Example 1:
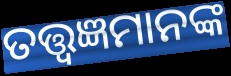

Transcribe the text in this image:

ତତ୍ତ୍ୱଜ୍ଞମାନଙ୍କ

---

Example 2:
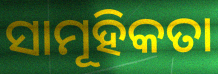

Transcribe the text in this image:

ସାମୂହିକତା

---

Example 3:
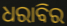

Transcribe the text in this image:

ଧରାବିର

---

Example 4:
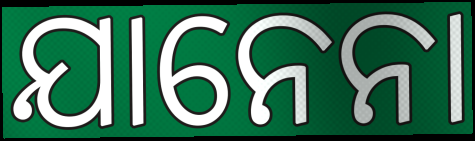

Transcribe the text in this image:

ଯାନେନା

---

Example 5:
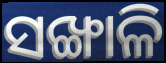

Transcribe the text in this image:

ସଙ୍ଖାଳି